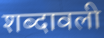
शब्दावली